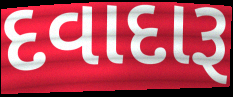
દવાદારૂ